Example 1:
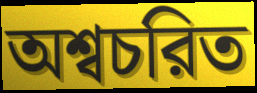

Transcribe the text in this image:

অশ্বচরিত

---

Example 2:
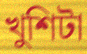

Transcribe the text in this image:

খুশিটা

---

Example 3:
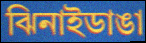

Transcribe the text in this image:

ঝিনাইডাঙা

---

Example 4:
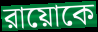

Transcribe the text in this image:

রায়োকে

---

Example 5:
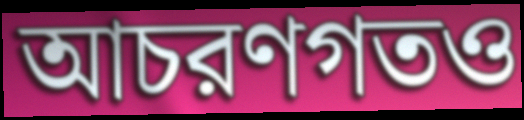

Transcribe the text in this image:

আচরণগতও